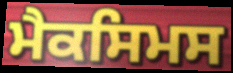
ਮੈਕਸਿਮਸ